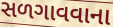
સળગાવવાના